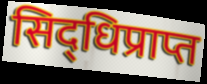
सिद्धिप्राप्त